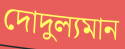
দোদুল্যমান